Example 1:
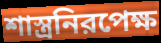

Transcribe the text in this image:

শাস্ত্রনিরপেক্ষ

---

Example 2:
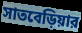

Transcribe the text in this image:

সাতবেড়িয়ার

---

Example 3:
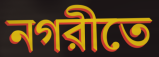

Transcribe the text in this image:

নগরীতে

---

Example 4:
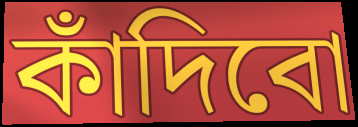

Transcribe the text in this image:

কাঁদিবো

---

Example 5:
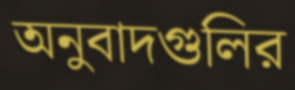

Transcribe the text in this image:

অনুবাদগুলির